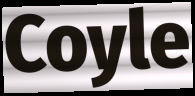
Coyle